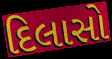
દિલાસો